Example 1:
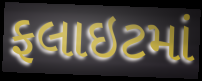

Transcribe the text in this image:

ફલાઇટમાં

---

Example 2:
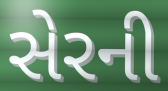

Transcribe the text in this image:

સેરની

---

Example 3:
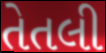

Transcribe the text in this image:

તેતલી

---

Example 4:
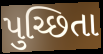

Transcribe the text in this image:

પુચ્છિતા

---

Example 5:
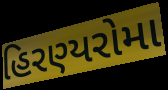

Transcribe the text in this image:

હિરણ્યરોમા